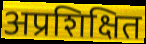
अप्रशिक्षित